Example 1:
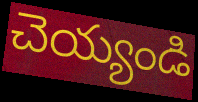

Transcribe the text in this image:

చెయ్యండి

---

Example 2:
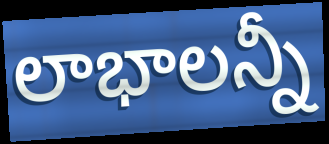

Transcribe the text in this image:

లాభాలన్నీ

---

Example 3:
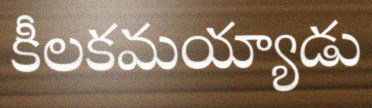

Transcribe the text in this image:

కీలకమయ్యాడు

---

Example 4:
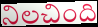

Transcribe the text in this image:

నిలచింది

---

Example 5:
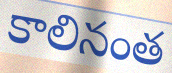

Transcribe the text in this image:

కాలినంత